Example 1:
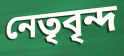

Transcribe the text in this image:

নেতৃবৃন্দ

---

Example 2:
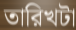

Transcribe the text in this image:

তারিখটা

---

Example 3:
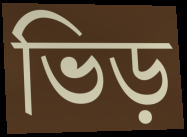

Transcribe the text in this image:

ভিড়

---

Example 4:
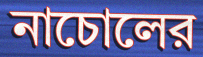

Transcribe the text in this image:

নাচোলের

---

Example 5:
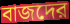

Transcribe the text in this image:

বাজদের